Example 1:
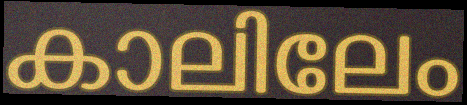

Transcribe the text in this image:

കാലിലേം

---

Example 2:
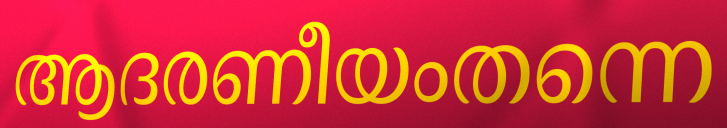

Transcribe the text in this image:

ആദരണീയംതന്നെ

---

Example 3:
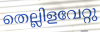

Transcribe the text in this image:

തെല്ലിളവേറ്റു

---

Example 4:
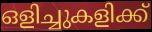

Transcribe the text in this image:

ഒളിച്ചുകളിക്ക്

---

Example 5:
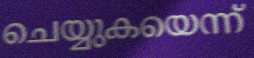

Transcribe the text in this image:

ചെയ്യുകയെന്ന്